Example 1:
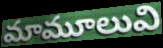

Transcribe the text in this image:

మామూలువి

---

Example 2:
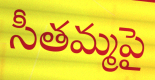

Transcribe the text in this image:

సీతమ్మపై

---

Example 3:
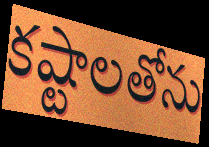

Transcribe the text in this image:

కష్టాలతోను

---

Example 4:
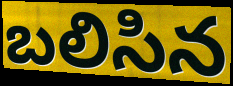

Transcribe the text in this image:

బలిసిన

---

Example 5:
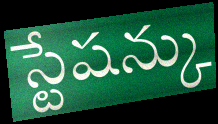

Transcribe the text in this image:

స్టేషన్కు